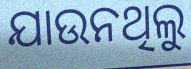
ଯାଉନଥିଲୁ